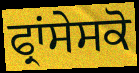
ਫ੍ਰਾਂਸੇਸਕੋ